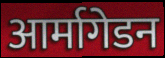
आर्मागेडन